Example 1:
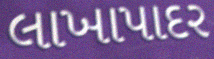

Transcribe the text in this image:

લાખાપાદર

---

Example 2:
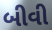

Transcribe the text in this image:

બીવી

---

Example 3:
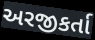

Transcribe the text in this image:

અરજીકર્તા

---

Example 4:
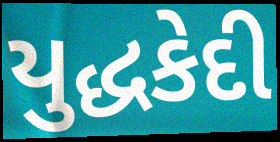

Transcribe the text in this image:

યુદ્ધકેદી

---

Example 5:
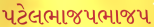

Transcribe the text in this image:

પટેલભાજપભાજપ